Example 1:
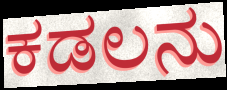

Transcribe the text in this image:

ಕಡಲನು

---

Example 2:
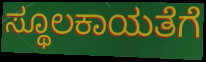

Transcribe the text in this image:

ಸ್ಥೂಲಕಾಯತೆಗೆ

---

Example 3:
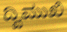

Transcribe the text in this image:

ದ್ವಿಮುಖಿ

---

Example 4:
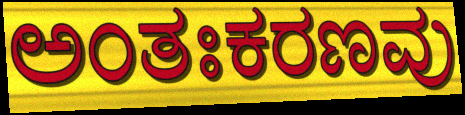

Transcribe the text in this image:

ಅಂತಃಕರಣವು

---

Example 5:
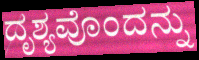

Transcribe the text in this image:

ದೃಶ್ಯವೊಂದನ್ನು